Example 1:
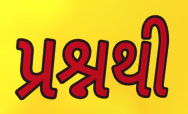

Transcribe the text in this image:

પ્રશ્નથી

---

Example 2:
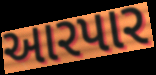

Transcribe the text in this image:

આરપાર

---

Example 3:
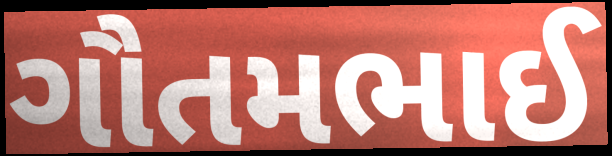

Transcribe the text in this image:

ગૌતમભાઈ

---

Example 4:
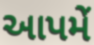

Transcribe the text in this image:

આપમેં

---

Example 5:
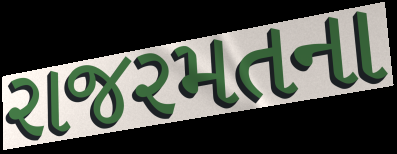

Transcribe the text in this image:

રાજરમતના